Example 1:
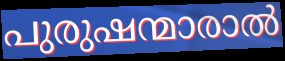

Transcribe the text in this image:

പുരുഷന്മാരാൽ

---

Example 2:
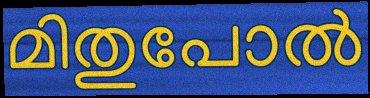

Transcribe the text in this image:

മിതുപോൽ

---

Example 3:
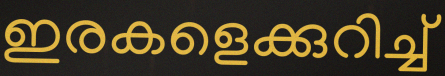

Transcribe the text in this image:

ഇരകളെക്കുറിച്ച്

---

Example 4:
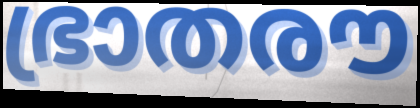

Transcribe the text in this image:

ഭ്രാതരൗ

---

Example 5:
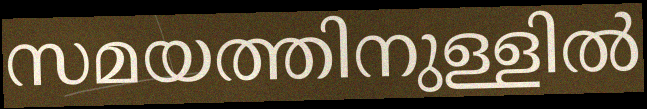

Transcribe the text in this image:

സമയത്തിനുള്ളിൽ